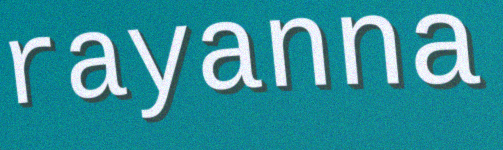
rayanna